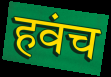
हवंच